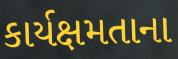
કાર્યક્ષમતાના